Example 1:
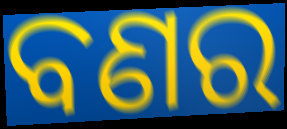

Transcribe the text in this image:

ବଣର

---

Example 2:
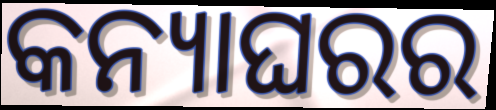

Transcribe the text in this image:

କନ୍ୟାଘରର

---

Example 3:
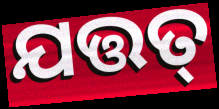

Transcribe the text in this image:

ଯତ୍ତତ୍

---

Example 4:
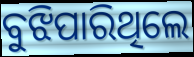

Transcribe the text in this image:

ବୁଝିପାରିଥିଲେ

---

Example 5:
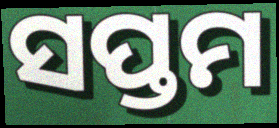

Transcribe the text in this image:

ସପ୍ତମ